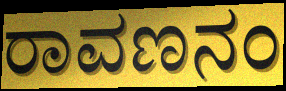
ರಾವಣನಂ